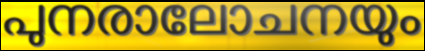
പുനരാലോചനയും